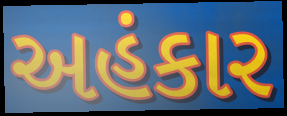
અહંકાર